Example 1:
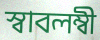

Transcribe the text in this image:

স্বাবলম্বী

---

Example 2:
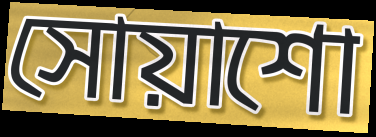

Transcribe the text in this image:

সোয়াশো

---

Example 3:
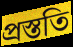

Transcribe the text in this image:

প্রস্ততি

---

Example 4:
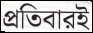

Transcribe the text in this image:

প্রতিবারই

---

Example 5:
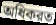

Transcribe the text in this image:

অধিকরত